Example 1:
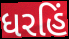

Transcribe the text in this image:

ધરહિં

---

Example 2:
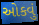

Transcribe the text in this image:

ઓકવું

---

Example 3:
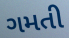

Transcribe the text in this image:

ગમતી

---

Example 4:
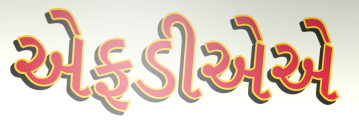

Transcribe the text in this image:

એફડીએએ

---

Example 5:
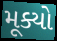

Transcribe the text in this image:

મૂક્યો